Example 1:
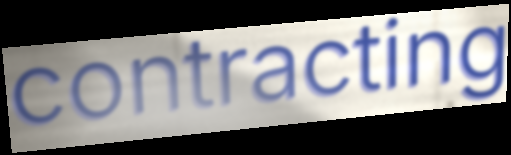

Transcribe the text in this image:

contracting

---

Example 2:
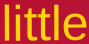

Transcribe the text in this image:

little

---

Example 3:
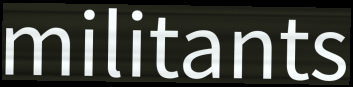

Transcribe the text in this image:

militants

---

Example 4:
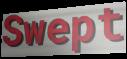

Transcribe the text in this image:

Swept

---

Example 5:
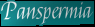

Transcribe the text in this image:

Panspermia